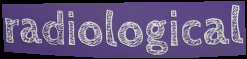
radiological